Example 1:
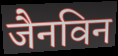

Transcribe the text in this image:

जैनविन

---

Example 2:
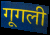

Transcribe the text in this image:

गूगली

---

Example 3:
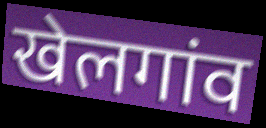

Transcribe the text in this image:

खेलगांव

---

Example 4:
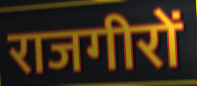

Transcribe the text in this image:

राजगीरों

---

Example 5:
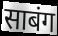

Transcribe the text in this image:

साबंग